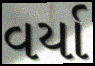
વર્યા